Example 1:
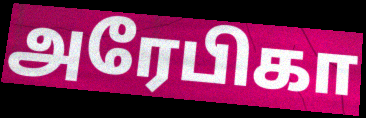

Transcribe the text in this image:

அரேபிகா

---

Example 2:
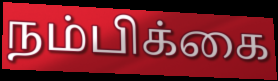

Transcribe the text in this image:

நம்பிக்கை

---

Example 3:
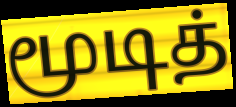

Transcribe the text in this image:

மூடித்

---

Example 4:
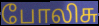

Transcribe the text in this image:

போலிசு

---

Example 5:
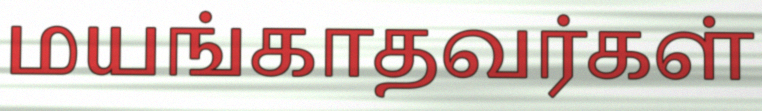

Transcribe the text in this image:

மயங்காதவர்கள்